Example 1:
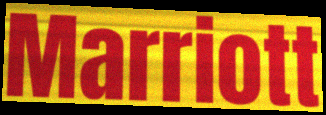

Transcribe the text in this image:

Marriott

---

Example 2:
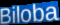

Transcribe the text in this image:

Biloba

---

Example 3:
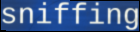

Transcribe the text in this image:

sniffing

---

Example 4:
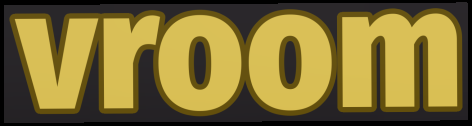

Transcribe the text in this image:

vroom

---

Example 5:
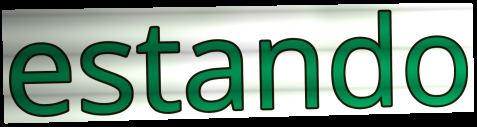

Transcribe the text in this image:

estando